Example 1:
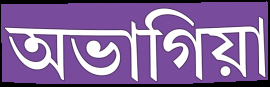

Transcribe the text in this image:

অভাগিয়া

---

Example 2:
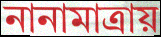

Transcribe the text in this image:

নানামাত্রায়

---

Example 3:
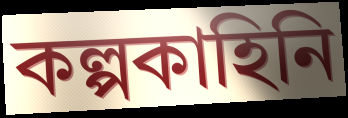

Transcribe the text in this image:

কল্পকাহিনি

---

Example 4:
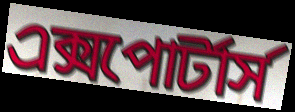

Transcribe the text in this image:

এক্সপোর্টার্স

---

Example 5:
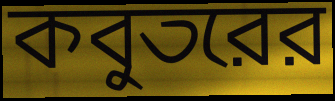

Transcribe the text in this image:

কবুতরের